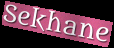
Sekhane